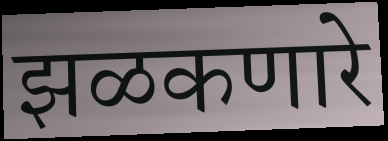
झळकणारे